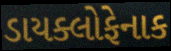
ડાયક્લોફેનાક